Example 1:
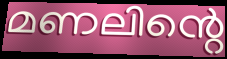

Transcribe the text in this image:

മണലിന്റെ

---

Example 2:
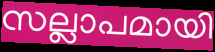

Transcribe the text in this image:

സല്ലാപമായി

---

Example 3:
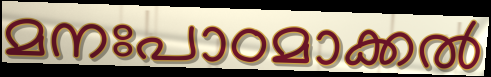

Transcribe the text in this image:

മനഃപാഠമാക്കൽ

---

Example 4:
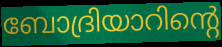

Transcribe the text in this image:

ബോദ്രിയാറിന്റെ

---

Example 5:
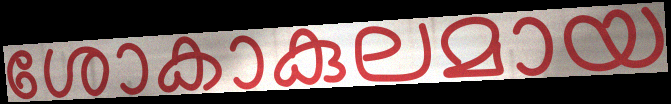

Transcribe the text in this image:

ശോകാകുലമായ